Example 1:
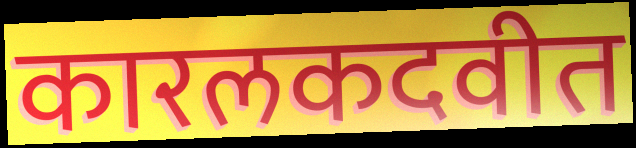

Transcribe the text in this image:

कारलकदवीत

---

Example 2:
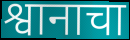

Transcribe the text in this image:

श्वानाचा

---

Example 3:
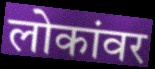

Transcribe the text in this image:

लोकांवर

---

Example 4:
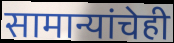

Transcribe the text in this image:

सामान्यांचेही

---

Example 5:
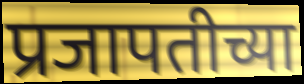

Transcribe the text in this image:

प्रजापतीच्या